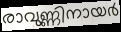
രാവുണ്ണിനായർ